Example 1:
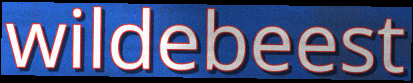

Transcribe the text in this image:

wildebeest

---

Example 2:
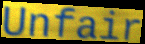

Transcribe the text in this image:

Unfair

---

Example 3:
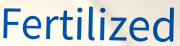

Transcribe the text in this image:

Fertilized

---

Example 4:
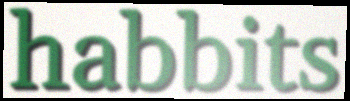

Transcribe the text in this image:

habbits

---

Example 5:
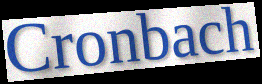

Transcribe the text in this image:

Cronbach